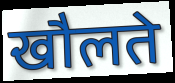
खौलते